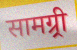
सामग्र्री